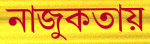
নাজুকতায়